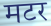
मटर